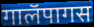
गालॅपागस